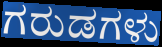
ಗರುಡಗಳು